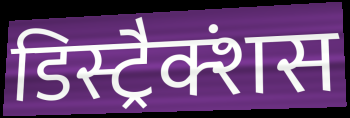
डिस्ट्रैक्शंस